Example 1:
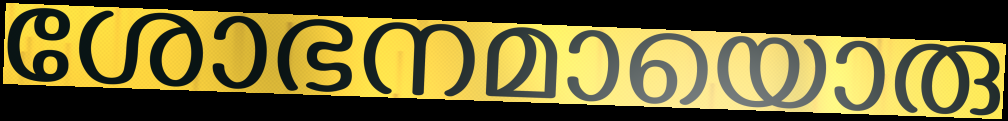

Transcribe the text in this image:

ശോഭനമായൊരു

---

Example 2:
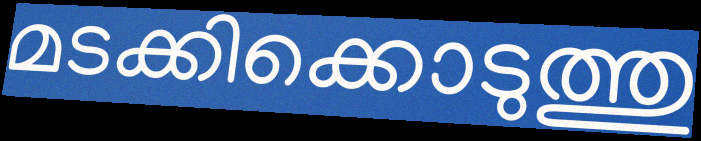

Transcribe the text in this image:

മടക്കിക്കൊടുത്തു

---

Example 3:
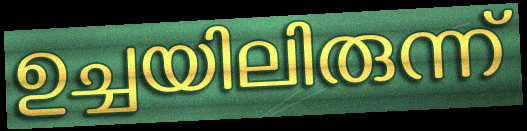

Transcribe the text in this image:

ഉച്ചയിലിരുന്ന്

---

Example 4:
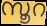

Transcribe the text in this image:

സൂറ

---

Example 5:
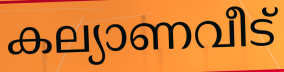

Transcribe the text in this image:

കല്യാണവീട്